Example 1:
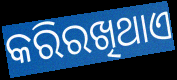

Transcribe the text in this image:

କରିରଖିଥାଏ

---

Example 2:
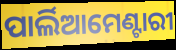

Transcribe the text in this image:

ପାର୍ଲିଆମେଣ୍ଟାରୀ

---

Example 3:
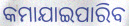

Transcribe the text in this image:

କମାଯାଇପାରିବ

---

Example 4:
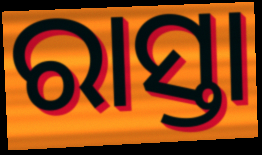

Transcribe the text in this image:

ରାସ୍ତା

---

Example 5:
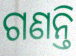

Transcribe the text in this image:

ଗଣନ୍ତି